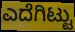
ಎದೆಗಿಟ್ಟು